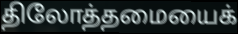
திலோத்தமையைக்